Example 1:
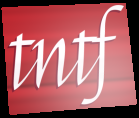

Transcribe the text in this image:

tntf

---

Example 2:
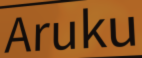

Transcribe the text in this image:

Aruku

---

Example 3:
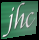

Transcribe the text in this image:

jhc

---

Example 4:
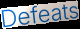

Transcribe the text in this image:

Defeats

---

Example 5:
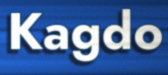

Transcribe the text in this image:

Kagdo